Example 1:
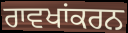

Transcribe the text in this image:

ਰਾਵਖਾਂਕਰਨ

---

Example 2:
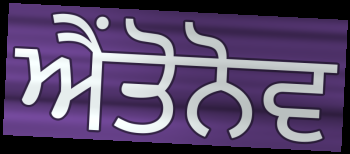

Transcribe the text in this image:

ਐਂਤੋਨੋਵ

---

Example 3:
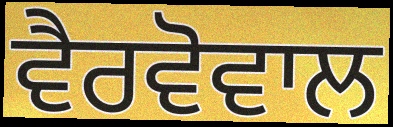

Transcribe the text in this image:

ਵੈਰਵੋਵਾਲ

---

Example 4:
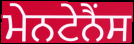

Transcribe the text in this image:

ਮੇਨਟੇਨੈਂਸ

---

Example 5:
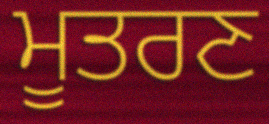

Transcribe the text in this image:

ਮੂਤਰਣ